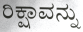
ರಿಕ್ಷಾವನ್ನು